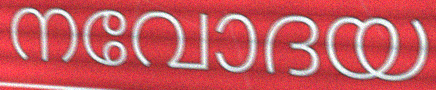
നവോദയ